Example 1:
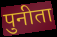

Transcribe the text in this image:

पुनीता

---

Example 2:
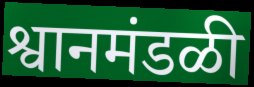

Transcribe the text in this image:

श्वानमंडळी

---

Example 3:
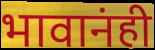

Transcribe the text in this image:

भावानंही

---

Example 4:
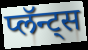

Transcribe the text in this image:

प्लॅन्ट्स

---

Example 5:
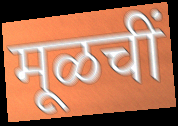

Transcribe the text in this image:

मूळचीं